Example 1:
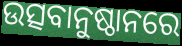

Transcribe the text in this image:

ଉତ୍ସବାନୁଷ୍ଠାନରେ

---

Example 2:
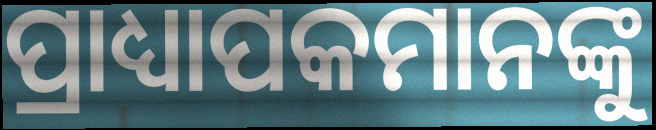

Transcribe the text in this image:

ପ୍ରାଧ୍ୟାପକମାନଙ୍କୁ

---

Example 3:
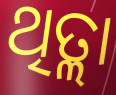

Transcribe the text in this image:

ଥିତ୍ଲା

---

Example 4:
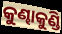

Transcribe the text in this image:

କୁଣ୍ଢାକୁଣ୍ଡି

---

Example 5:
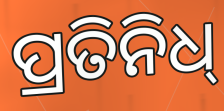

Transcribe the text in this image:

ପ୍ରତିନିଧ୍